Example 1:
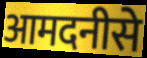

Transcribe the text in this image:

आमदनीसे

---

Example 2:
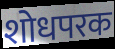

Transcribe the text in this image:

शोधपरक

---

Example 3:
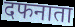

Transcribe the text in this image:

दफनाता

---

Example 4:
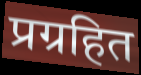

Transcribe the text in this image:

प्रग्रहित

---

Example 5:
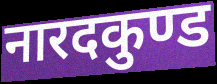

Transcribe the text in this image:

नारदकुण्ड